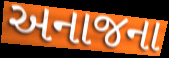
અનાજના